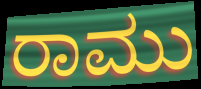
ರಾಮು